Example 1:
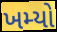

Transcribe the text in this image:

ખમ્યો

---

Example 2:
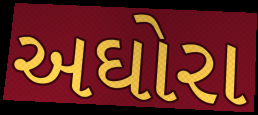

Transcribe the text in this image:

અઘોરા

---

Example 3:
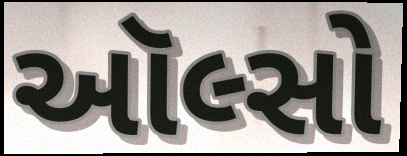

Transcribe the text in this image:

ઑલ્સો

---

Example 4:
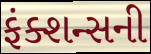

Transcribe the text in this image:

ફંક્શન્સની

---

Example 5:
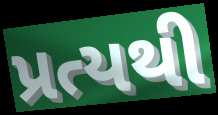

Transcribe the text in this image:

પ્રત્યથી